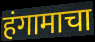
हंगामाचा